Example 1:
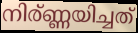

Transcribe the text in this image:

നിര്ണ്ണയിച്ചത്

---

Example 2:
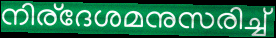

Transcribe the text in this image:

നിര്ദേശമനുസരിച്ച്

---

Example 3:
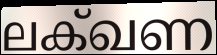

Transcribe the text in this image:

ലക്ഖണ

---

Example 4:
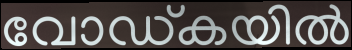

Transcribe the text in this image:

വോഡ്കയിൽ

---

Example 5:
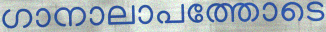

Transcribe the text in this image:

ഗാനാലാപത്തോടെ